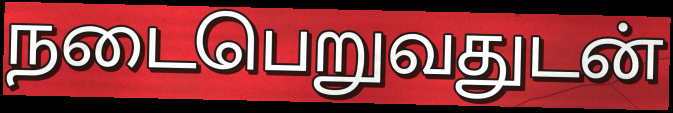
நடைபெறுவதுடன்